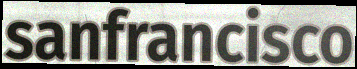
sanfrancisco